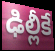
ఢిల్లీకే